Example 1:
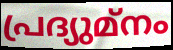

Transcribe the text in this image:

പ്രദ്യുമ്നം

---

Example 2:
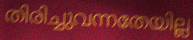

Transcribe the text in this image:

തിരിച്ചുവന്നതേയില്ല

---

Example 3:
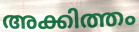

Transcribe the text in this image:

അക്കിത്തം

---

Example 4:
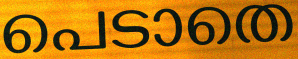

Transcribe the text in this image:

പെടാതെ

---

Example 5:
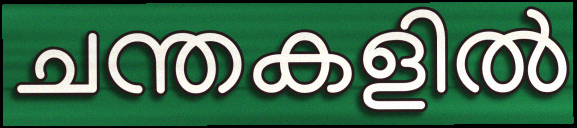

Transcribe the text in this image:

ചന്തകളിൽ